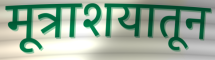
मूत्राशयातून